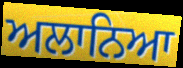
ਅਲਾਨਿਆ